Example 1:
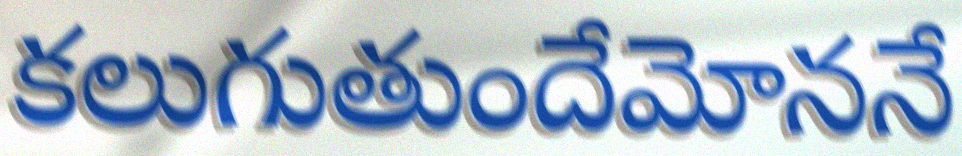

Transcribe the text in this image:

కలుగుతుందేమోననే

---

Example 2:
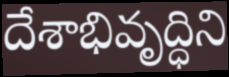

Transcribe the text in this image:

దేశాభివృద్ధిని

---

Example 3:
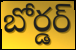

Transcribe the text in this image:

బోర్డర్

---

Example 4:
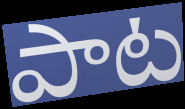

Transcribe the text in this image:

పాట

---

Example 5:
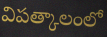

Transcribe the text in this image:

విపత్కాలంలో